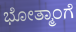
ಭೋತ್ಮಾಂಗೆ